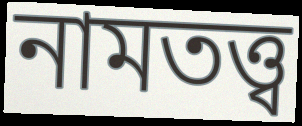
নামতত্ত্ব